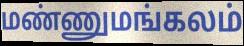
மண்ணுமங்கலம்